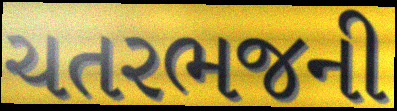
ચતરભજની